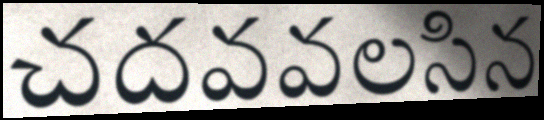
చదవవలసిన